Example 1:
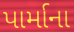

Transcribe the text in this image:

પાર્માના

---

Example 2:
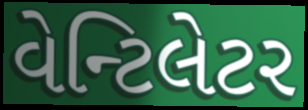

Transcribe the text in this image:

વેન્‍ટિલેટર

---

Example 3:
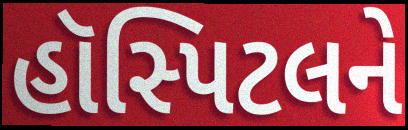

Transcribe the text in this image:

હૉસ્પિટલને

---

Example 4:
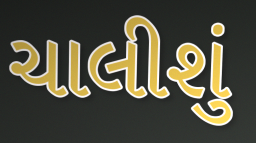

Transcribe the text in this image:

ચાલીશું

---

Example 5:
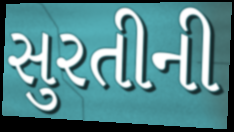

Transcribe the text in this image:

સુરતીની